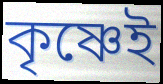
কৃষ্ণেই